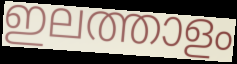
ഇലത്താളം